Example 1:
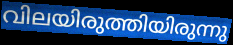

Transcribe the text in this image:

വിലയിരുത്തിയിരുന്നു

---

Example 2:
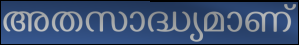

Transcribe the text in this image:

അതസാദ്ധ്യമാണ്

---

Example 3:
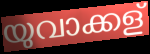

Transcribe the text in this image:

യുവാക്കള്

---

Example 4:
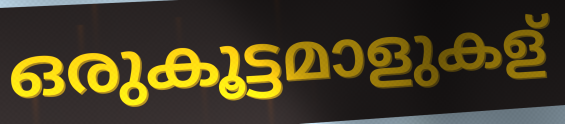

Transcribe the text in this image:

ഒരുകൂട്ടമാളുകള്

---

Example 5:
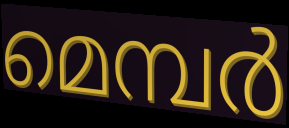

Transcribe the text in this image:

മെമ്പർ